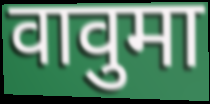
वावुमा